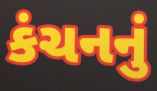
કંચનનું